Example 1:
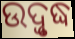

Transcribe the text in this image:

ଉଦ୍ବୃଦ୍ଧ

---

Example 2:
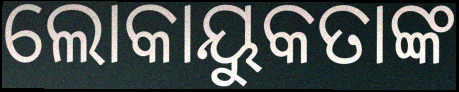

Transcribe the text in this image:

ଲୋକାୟୁକତାଙ୍କ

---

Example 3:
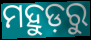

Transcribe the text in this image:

ମହୁଡ଼ରୁ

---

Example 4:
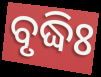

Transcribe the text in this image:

ବୃଦ୍ଧିଃ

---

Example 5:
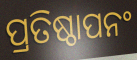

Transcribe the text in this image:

ପ୍ରତିଷ୍ଠାପନଂ